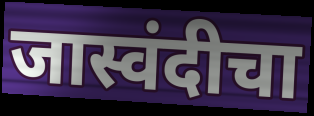
जास्वंदीचा